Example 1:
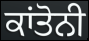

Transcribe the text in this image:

ਕਾਂਤੋਨੀ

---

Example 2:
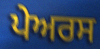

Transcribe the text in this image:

ਪੇਅਰਸ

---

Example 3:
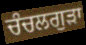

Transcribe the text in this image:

ਚੰਚਲਗੁੜਾ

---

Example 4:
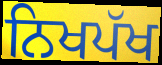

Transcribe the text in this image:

ਨਿਖਪੱਖ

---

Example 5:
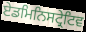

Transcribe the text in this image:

ਏਡਮਿਨਿਸਟ੍ਰੇਟਿਵ